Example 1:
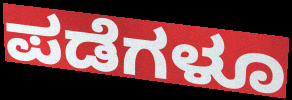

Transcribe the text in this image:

ಪಡೆಗಳೂ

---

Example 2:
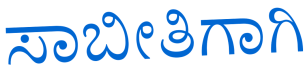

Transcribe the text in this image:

ಸಾಬೀತಿಗಾಗಿ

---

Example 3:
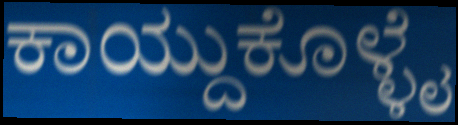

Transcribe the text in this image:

ಕಾಯ್ದುಕೊಳ್ಳೈ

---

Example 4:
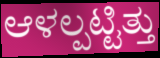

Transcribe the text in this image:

ಆಳಲ್ಪಟ್ಟಿತ್ತು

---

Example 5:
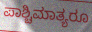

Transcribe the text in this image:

ಪಾಶ್ಚಿಮಾತ್ಯರೂ